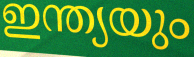
ഇന്ത്യയും